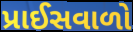
પ્રાઈસવાળો